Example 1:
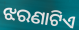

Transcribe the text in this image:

ଝରଣାଟିଏ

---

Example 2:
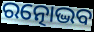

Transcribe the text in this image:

ରତ୍ନୋଦ୍ଭବ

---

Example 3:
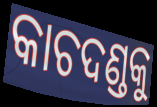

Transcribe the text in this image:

କାଚଦଣ୍ଡକୁ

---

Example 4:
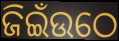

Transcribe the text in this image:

ଜିଇଁଉଠେ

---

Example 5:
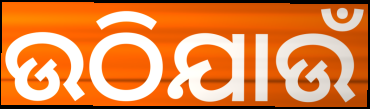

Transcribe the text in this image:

ଉଠିଯାଉଁ